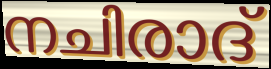
നചിരാദ്